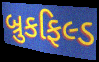
બ્રુકફિલ્ડ